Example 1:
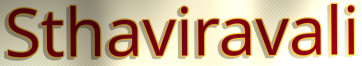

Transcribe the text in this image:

Sthaviravali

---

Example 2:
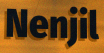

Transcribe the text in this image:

Nenjil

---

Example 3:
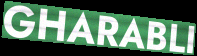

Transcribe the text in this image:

GHARABLI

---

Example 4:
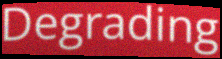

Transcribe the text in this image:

Degrading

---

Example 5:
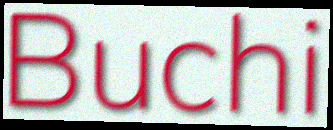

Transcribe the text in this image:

Buchi